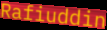
Rafiuddin